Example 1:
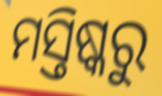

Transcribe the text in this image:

ମସ୍ତିଷ୍କରୁ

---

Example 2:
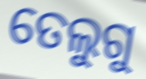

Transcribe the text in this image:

ତେଲୁଗୁ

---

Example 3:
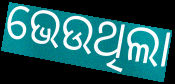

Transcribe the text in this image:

ଭେଉଥିଲା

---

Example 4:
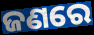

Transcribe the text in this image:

ଜଣରେ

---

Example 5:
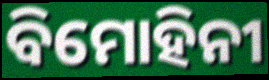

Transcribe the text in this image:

ବିମୋହିନୀ